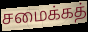
சமைக்கத்